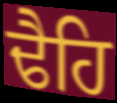
ਢੈਹਿ